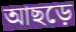
আছড়ে